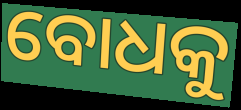
ବୋଧକୁ